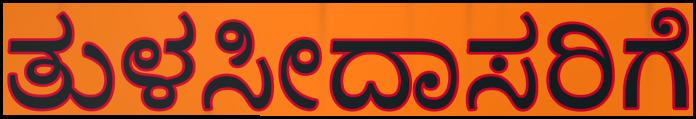
ತುಳಸೀದಾಸರಿಗೆ